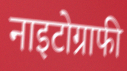
नाइटोग्राफी